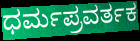
ಧರ್ಮಪ್ರವರ್ತಕ